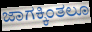
ಜಾಗಕ್ಕಿಂತಲೂ